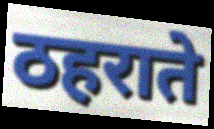
ठहराते